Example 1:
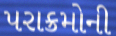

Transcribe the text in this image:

પરાક્રમોની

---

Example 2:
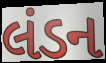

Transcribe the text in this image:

લંડન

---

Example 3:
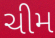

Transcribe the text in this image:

ચીમ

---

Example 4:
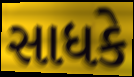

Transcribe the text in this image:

સાધકે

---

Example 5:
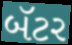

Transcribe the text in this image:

બૅટર